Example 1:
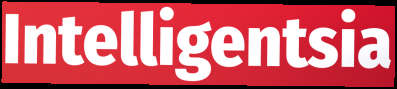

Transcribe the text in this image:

Intelligentsia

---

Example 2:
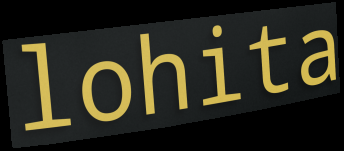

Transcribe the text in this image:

lohita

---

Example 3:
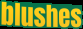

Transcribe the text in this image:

blushes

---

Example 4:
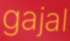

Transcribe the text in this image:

gajal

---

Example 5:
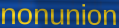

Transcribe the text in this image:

nonunion